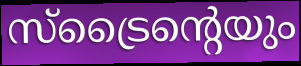
സ്ട്രൈന്റെയും